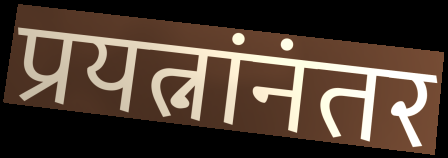
प्रयत्नांनंतर